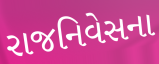
રાજનિવેસના